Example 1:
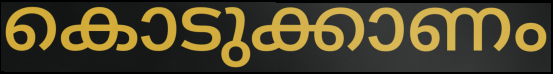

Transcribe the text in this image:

കൊടുക്കാണം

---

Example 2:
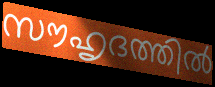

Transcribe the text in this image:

സൗഹൃദത്തിൽ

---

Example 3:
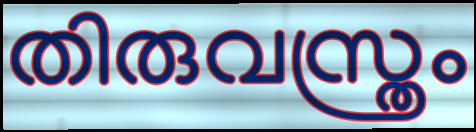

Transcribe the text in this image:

തിരുവസ്ത്രം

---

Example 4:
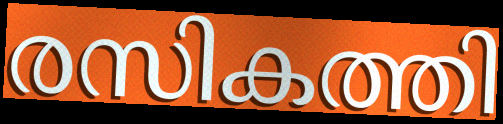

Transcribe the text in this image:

രസികത്തി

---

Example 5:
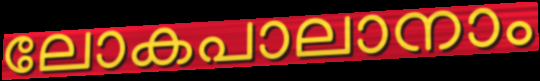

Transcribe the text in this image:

ലോകപാലാനാം